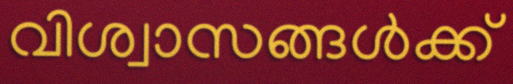
വിശ്വാസങ്ങൾക്ക്